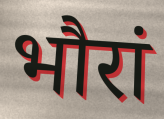
भौरां